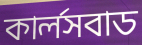
কার্লসবাড